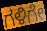
ಗಳಿಗೇ